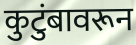
कुटुंबावरून